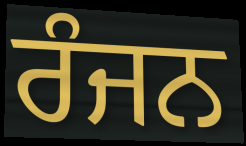
ਰੰਜਨ